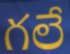
గలే